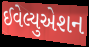
ઈવેલ્યુએશન